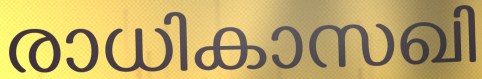
രാധികാസഖി